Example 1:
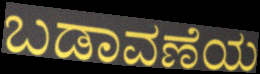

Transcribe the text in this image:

ಬಡಾವಣೆಯ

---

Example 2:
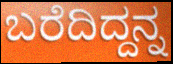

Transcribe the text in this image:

ಬರೆದಿದ್ದನ್ನ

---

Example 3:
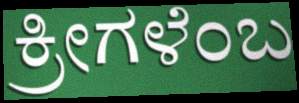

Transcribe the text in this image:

ಕ್ರೀಗಳೆಂಬ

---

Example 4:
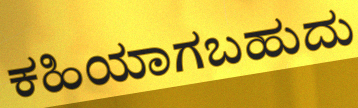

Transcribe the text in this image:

ಕಹಿಯಾಗಬಹುದು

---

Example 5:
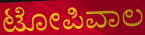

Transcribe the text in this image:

ಟೋಪಿವಾಲ